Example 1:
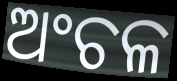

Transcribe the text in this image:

ଅଂଚଳ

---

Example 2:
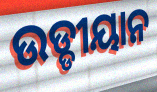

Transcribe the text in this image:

ଉଡ୍ଡୀୟାନ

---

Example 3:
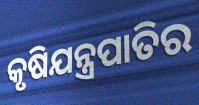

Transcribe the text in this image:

କୃଷିଯନ୍ତ୍ରପାତିର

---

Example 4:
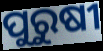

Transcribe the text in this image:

ପୁରୁଷୀ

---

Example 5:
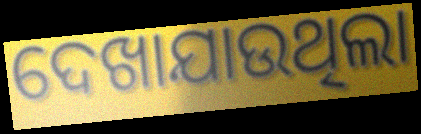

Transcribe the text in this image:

ଦେଖାଯାଉଥିଲା